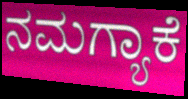
ನಮಗ್ಯಾಕೆ